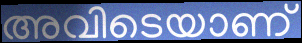
അവിടെയാണ്